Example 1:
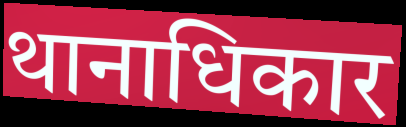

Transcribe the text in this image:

थानाधिकार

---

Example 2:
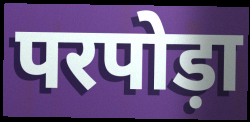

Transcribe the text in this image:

परपोड़ा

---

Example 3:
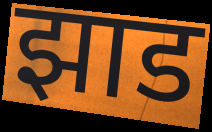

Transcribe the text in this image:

झाड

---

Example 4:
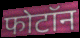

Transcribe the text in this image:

फोटॉन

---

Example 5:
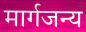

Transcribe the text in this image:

मार्गजन्य